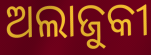
ଅଲାଜୁକୀ